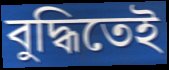
বুদ্ধিতেই